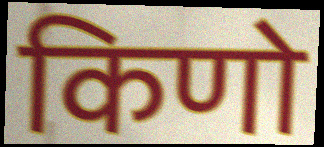
किणो